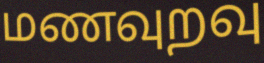
மணவுறவு